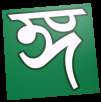
ঙ্গ